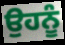
ਉਹਨੂੰ